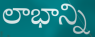
లాభాన్ని